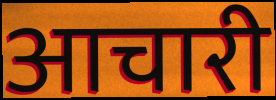
आचारी